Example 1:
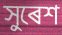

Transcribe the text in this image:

সুৰেশ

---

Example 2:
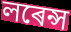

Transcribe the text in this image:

লৰেন্স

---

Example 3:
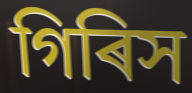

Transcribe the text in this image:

গিৰিস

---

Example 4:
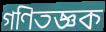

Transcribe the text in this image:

গণিতজ্ঞক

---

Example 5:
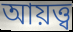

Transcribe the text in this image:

আয়ত্ত্ব